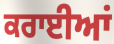
ਕਰਾਈਆਂ